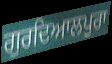
ਗੁਰਦਿਆਲਪੁਰਾ